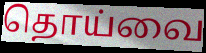
தொய்வை